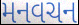
મનવચન